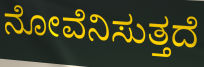
ನೋವೆನಿಸುತ್ತದೆ